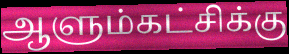
ஆளும்கட்சிக்கு